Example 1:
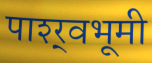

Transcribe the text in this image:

पाश्र्वभूमी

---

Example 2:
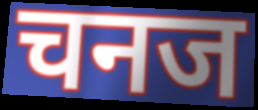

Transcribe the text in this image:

चनज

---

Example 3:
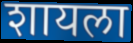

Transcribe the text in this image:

शायला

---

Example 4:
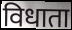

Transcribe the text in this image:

विधाता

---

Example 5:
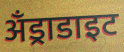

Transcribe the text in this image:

अँड्राडाइट